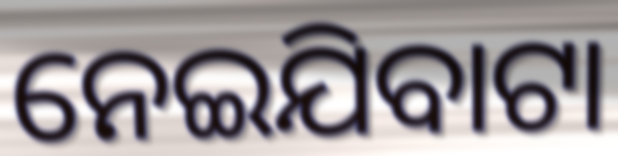
ନେଇଯିବାଟା